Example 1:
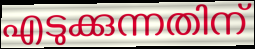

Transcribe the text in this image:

എടുക്കുന്നതിന്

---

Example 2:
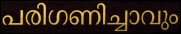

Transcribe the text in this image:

പരിഗണിച്ചാവും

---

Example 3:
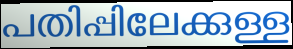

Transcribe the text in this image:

പതിപ്പിലേക്കുള്ള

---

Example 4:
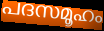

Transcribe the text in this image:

പദസമൂഹം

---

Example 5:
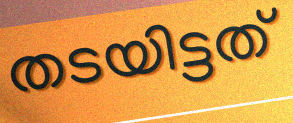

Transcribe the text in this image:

തടയിട്ടത്